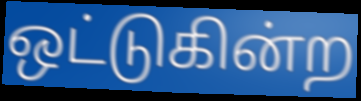
ஒட்டுகின்ற